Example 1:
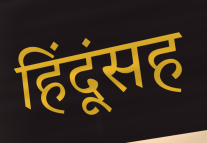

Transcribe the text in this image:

हिंदूंसह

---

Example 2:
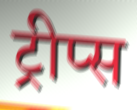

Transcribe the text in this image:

ट्रीप्स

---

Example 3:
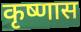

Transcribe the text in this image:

कृष्णास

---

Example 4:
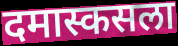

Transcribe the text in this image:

दमास्कसला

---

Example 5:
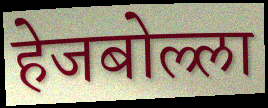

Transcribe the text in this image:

हेजबोल्ला